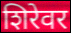
शिरेवर